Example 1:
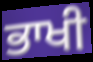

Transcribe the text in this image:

ਭਾਖੀ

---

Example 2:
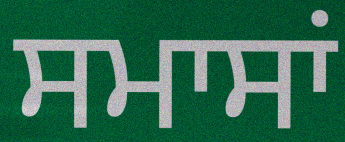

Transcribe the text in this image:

ਸਮਾਸਾਂ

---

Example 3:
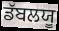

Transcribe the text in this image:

ਡੱਬਲਯੂ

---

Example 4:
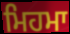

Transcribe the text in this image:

ਮਿਹਮਾ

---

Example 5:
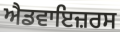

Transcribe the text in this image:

ਐਡਵਾਇਜ਼ਰਸ